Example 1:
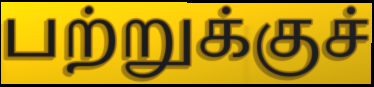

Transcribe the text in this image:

பற்றுக்குச்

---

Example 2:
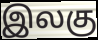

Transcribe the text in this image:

இலகு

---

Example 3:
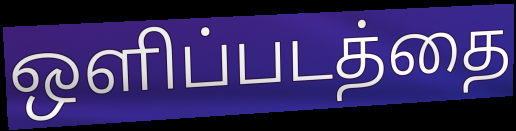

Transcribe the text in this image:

ஒளிப்படத்தை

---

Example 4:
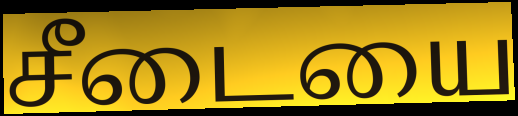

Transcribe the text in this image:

சீடையை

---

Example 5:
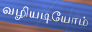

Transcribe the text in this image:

வழியடியோம்